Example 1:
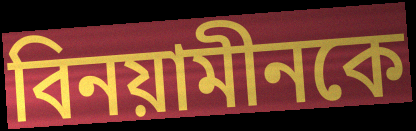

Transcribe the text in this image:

বিনয়ামীনকে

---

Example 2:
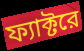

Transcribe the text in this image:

ফ্যাক্টরে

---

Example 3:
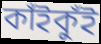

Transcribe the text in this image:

কাঁইকুঁই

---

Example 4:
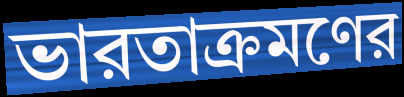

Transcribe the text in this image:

ভারতাক্রমণের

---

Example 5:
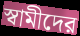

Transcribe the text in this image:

স্বামীদের